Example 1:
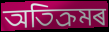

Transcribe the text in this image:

অতিক্ৰমৰ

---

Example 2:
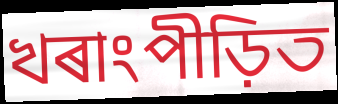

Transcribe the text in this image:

খৰাংপীড়িত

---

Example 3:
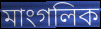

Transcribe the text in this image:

মাংগলিক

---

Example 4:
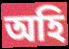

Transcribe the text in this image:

অহি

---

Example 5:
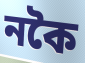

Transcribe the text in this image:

নকৈ